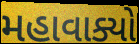
મહાવાક્યો